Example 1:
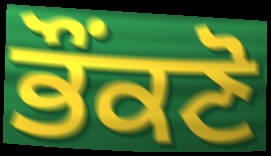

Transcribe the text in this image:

ਭੌਂਕਣੋ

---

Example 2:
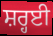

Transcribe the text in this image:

ਸ਼ਰ੍ਹਈ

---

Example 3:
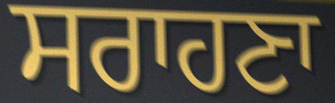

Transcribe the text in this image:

ਸਰਾਹਣਾ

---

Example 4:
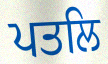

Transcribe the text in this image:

ਪਤਲਿ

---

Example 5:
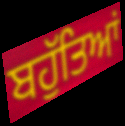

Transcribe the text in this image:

ਬਹੁੱਤਿਆਂ